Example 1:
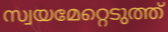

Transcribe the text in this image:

സ്വയമേറ്റെടുത്ത്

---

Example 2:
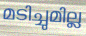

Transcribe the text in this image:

മടിച്ചുമില്ല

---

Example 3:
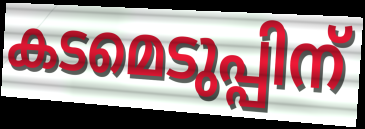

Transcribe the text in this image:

കടമെടുപ്പിന്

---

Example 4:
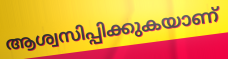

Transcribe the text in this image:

ആശ്വസിപ്പിക്കുകയാണ്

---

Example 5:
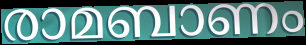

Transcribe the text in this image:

രാമബാണം